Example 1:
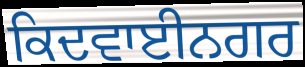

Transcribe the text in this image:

ਕਿਦਵਾਈਨਗਰ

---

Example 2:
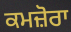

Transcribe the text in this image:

ਕਮਜ਼ੋਰਾ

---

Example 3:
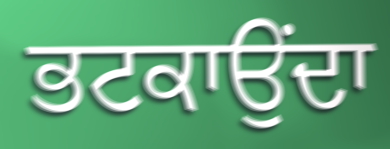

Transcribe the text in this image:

ਭਟਕਾਉਂਦਾ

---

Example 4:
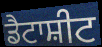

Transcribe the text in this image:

ਡੈਟਾਸ਼ੀਟ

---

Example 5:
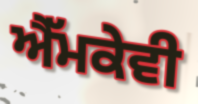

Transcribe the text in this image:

ਐੱਮਕੇਵੀ